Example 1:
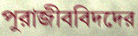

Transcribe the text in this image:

পুরাজীববিদদের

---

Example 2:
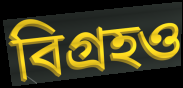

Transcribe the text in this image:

বিগ্রহও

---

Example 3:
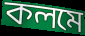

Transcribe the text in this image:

কলমে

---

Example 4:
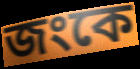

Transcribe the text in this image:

জংকে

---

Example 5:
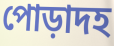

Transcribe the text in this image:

পোড়াদহ